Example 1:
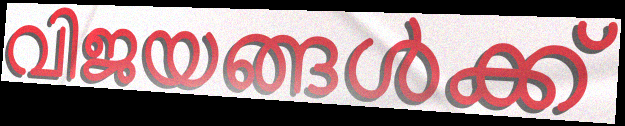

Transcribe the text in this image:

വിജയങ്ങൾക്ക്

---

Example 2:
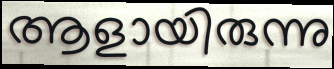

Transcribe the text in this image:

ആളായിരുന്നു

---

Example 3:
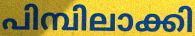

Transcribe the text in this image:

പിമ്പിലാക്കി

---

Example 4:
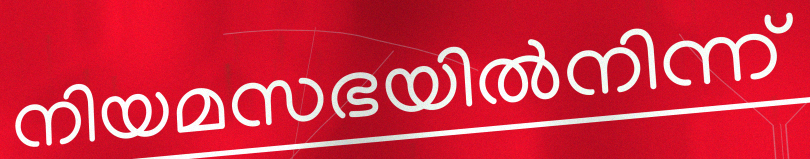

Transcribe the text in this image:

നിയമസഭയിൽനിന്ന്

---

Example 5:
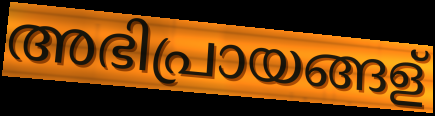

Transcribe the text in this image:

അഭിപ്രായങ്ങള്